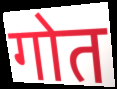
गोत